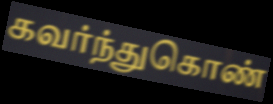
கவர்ந்துகொண்